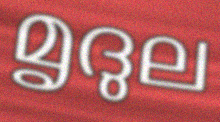
മൃദുല